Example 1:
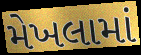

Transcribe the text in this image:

મેખલામાં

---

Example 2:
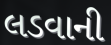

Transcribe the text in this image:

લડવાની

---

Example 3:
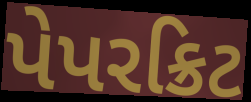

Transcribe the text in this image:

પેપરક્રિટ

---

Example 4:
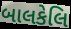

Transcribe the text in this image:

બાલકેલિ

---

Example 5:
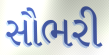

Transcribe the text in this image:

સૌભરી